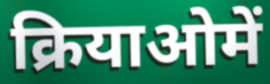
क्रियाओमें